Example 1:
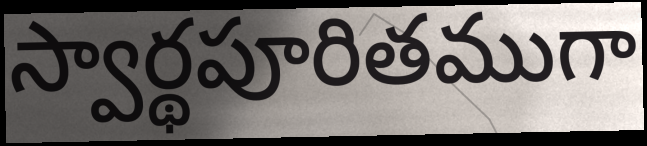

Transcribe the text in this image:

స్వార్థపూరితముగా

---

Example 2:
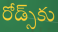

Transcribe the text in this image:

రోడ్స్‌కు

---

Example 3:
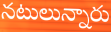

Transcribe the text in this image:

నటులున్నారు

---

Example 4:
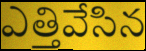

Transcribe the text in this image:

ఎత్తివేసిన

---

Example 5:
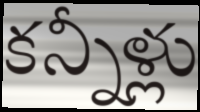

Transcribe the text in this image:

కన్నీళ్లు